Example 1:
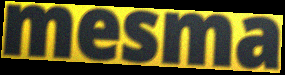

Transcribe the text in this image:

mesma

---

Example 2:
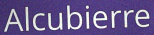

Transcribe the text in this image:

Alcubierre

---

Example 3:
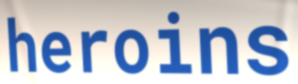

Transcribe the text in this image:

heroins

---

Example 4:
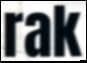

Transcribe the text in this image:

rak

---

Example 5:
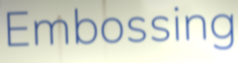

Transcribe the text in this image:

Embossing